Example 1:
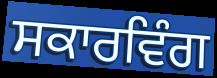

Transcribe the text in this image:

ਸਕਾਰਵਿੰਗ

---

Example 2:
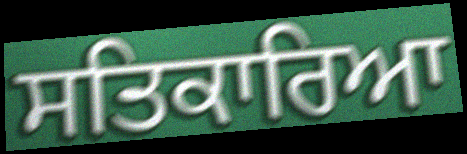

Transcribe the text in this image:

ਸਤਿਕਾਰਿਆ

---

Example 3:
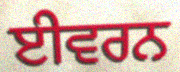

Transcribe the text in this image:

ਈਵਰਨ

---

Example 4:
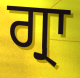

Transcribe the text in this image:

ਗ੍ਰਾ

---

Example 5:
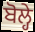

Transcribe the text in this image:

ਬੋਲ੍ਹੇ